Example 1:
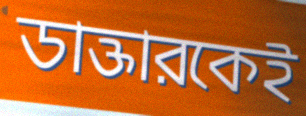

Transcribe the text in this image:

ডাক্তারকেই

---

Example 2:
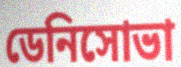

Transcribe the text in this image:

ডেনিসোভা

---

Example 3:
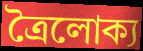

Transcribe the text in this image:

ত্রৈলোক্য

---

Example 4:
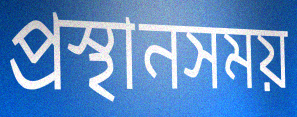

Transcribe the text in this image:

প্রস্থানসময়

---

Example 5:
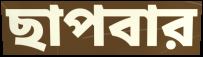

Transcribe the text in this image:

ছাপবার